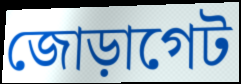
জোড়াগেট